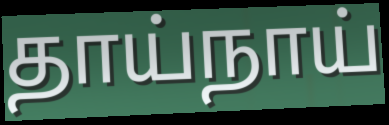
தாய்நாய்